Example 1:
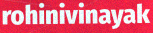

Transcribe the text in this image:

rohinivinayak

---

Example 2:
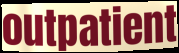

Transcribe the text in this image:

outpatient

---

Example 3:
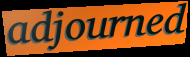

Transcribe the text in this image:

adjourned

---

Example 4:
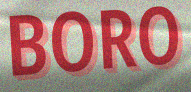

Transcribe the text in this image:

BORO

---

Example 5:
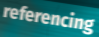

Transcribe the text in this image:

referencing